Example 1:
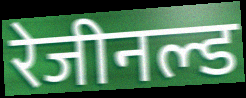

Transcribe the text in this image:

रेजीनल्ड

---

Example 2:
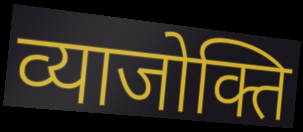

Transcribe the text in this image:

व्याजोक्ति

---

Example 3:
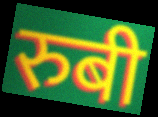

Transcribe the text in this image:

रुबी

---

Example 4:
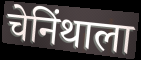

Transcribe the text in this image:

चेनिंथाला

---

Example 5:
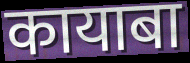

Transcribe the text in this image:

कायाबा